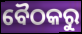
ବୈଠକରୁ